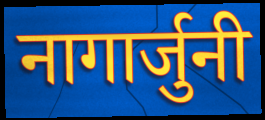
नागार्जुनी